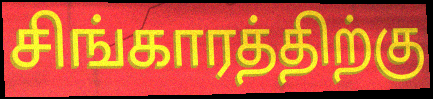
சிங்காரத்திற்கு